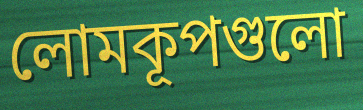
লোমকূপগুলো